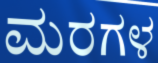
ಮರಗಳ